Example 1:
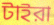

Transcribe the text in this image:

টাইরা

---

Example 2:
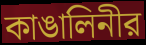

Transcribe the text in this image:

কাঙালিনীর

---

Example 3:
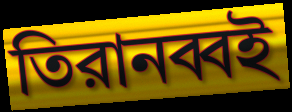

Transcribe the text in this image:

তিরানব্বই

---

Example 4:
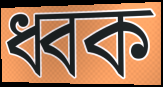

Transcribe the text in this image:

ধ্বক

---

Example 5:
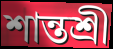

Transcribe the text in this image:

শান্তশ্রী